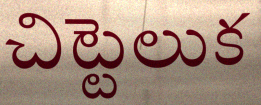
చిట్టెలుక